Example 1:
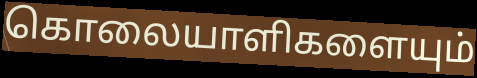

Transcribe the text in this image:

கொலையாளிகளையும்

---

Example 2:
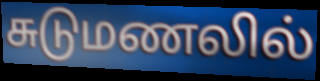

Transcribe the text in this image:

சுடுமணலில்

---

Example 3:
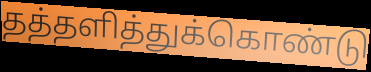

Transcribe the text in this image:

தத்தளித்துக்கொண்டு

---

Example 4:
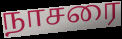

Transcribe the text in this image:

நாசரை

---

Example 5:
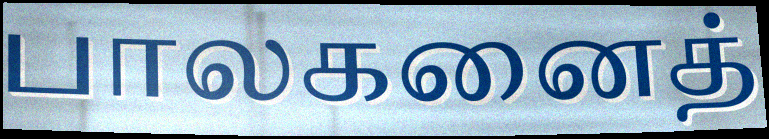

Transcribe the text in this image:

பாலகனைத்